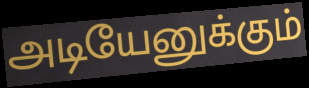
அடியேனுக்கும்